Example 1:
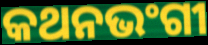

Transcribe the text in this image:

କଥନଭଂଗୀ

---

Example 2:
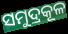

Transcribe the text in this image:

ସମୁଦ୍ରକୂଳ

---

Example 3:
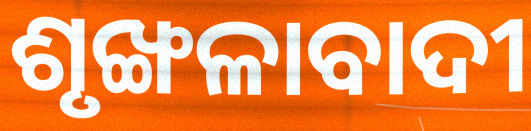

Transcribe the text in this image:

ଶୃଙ୍ଖଳାବାଦୀ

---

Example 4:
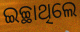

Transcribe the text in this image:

ଇଚ୍ଛାଥିଲେ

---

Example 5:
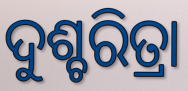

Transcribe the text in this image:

ଦୁଶ୍ଚରିତ୍ରା